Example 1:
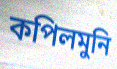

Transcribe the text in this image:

কপিলমুনি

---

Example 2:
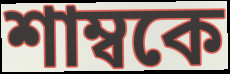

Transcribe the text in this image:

শাম্বকে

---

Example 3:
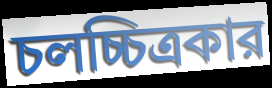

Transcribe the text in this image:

চলচ্চিত্রকার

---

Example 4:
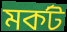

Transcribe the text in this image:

মর্কট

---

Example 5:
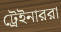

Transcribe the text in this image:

ট্রেইনাররা